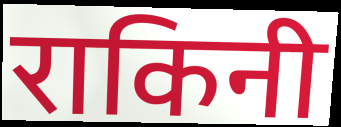
राकिनी